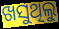
ଖସୁଥିଲୁ